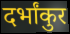
दर्भांकुर